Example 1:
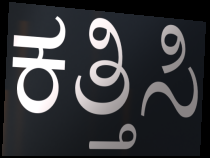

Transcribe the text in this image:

ಕತ್ತಿಸಿ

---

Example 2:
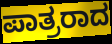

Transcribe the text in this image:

ಪಾತ್ರರಾದ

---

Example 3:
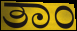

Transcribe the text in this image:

ತಾಂ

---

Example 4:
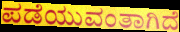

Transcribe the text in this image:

ಪಡೆಯುವಂತಾಗಿದೆ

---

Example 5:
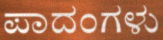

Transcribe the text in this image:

ಪಾದಂಗಳು